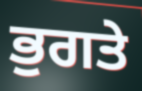
ਭੁਗਤੇ